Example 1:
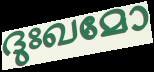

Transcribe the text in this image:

ദുഃഖമോ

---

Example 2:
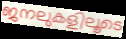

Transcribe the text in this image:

ജനലുകളിലൂടെ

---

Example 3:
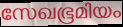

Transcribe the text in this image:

സേഖഭൂമിയം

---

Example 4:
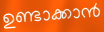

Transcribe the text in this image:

ഉണ്ടാക്കാൻ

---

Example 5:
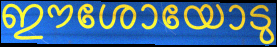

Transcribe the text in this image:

ഈശോയോടു